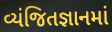
વ્યંજિતજ્ઞાનમાં